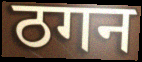
ठगन